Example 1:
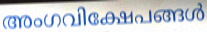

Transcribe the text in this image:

അംഗവിക്ഷേപങ്ങൾ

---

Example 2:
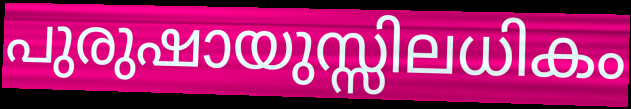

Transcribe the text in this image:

പുരുഷായുസ്സിലധികം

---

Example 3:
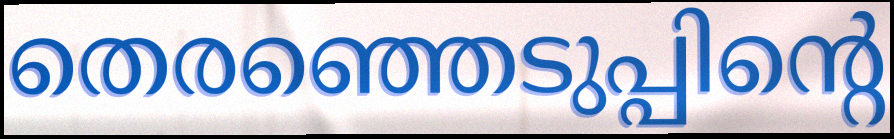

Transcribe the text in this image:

തെരഞ്ഞെടുപ്പിന്റെ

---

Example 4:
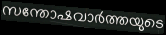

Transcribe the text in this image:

സന്തോഷവാർത്തയുടെ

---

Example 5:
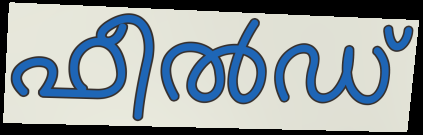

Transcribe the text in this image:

ഫീൽഡ്